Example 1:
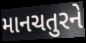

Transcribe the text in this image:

માનચતુરને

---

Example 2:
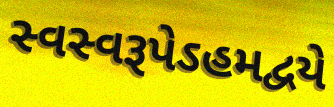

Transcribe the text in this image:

સ્વસ્વરૂપેઽહમદ્વયે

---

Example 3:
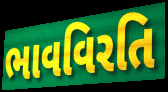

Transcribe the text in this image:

ભાવવિરતિ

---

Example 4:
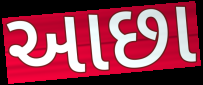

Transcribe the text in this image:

આછા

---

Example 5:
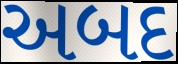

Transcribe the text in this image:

અબદ